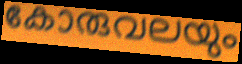
കോരുവലയും